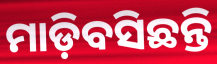
ମାଡ଼ିବସିଛନ୍ତି